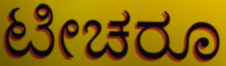
ಟೀಚರೂ